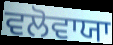
ਵਲੋਵਾਯਾ